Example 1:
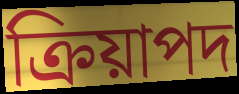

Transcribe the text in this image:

ক্রিয়াপদ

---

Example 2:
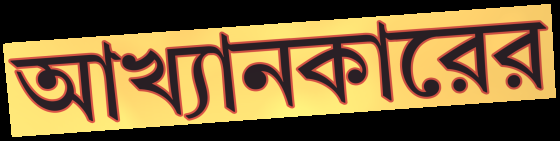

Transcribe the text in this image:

আখ্যানকারের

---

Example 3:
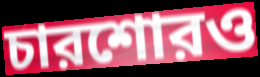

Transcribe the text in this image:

চারশোরও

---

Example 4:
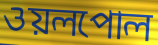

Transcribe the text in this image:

ওয়লপোল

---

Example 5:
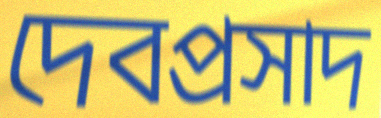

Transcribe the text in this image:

দেবপ্রসাদ